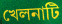
খেলনাটি